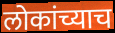
लोकांच्याच